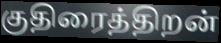
குதிரைத்திறன்